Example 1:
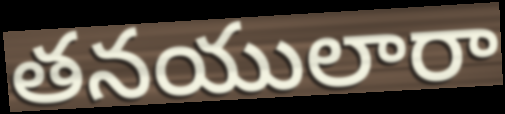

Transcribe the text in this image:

తనయులారా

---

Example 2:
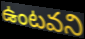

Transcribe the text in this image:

ఉంటవని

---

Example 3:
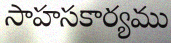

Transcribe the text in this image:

సాహసకార్యము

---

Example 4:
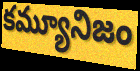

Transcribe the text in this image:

కమ్యూనిజం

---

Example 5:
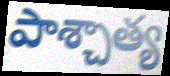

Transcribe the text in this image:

పాశ్చాత్య